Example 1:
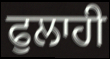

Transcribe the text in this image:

ਫੁਲਾਹੀ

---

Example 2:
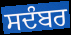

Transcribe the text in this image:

ਸਦੰਬਰ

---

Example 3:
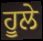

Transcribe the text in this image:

ਹੂਲੇ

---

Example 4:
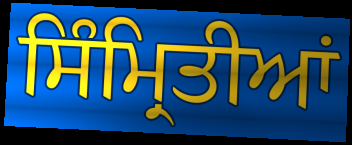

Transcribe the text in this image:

ਸਿੰਮ੍ਰਿਤੀਆਂ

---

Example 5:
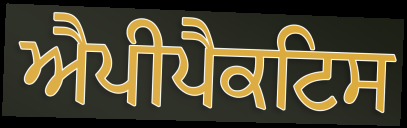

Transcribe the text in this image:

ਐਪੀਪੈਕਟਿਸ